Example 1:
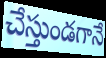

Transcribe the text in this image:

చేస్తుండగానే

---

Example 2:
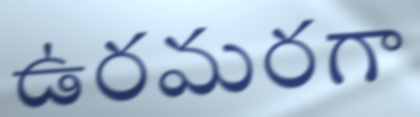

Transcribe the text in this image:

ఉరమరగా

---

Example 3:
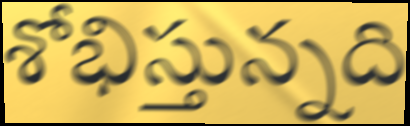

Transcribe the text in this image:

శోభిస్తున్నది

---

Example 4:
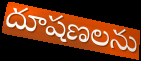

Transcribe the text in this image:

దూషణలను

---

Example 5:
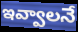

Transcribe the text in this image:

ఇవ్వాలనే